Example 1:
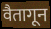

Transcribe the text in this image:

वैतागून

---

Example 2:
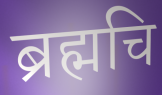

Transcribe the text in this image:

ब्रह्मचि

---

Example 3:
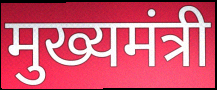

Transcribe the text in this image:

मुख्यमंत्री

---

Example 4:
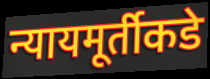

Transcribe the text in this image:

न्यायमूर्तीकडे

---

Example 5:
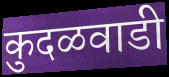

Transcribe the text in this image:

कुदळवाडी